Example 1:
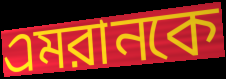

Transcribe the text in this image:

এমরানকে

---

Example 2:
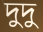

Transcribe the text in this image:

দুদু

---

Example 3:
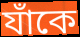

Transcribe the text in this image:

যাঁকে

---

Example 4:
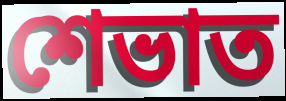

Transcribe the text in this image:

শেভাত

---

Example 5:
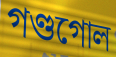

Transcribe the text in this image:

গণ্ডগোল